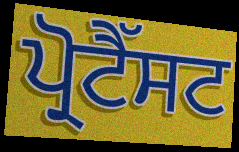
ਪ੍ਰੋਟੈੱਸਟ